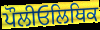
ਪੌਲੀਓਲਿਥਿਕ